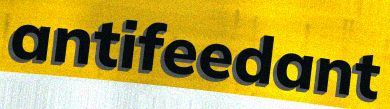
antifeedant